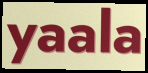
yaala